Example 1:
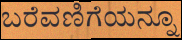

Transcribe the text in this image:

ಬರೆವಣಿಗೆಯನ್ನೂ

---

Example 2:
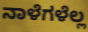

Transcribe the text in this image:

ನಾಳೆಗಳೆಲ್ಲ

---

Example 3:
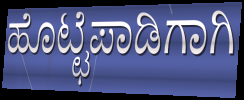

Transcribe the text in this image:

ಹೊಟ್ಟೆಪಾಡಿಗಾಗಿ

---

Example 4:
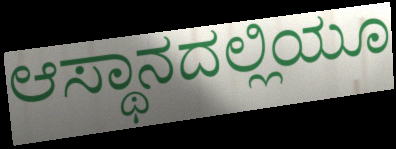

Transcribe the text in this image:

ಆಸ್ಥಾನದಲ್ಲಿಯೂ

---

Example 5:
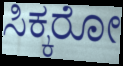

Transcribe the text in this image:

ಸಿಕ್ಕರೋ